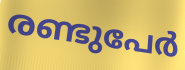
രണ്ടുപേർ